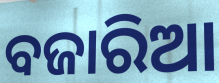
ବଜାରିଆ